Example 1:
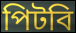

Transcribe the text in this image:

পিটবি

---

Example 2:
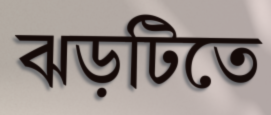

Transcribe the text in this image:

ঝড়টিতে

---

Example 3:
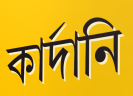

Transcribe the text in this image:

কার্দানি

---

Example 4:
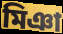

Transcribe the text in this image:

মিঞা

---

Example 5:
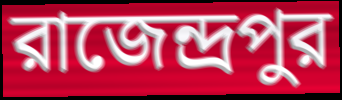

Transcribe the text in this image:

রাজেন্দ্রপুর